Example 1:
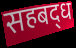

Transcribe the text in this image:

सहबद्ध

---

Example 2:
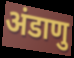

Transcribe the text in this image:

अंडाणु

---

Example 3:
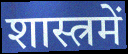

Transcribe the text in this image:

शास्त्रमें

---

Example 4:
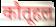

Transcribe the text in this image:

कौतूहल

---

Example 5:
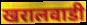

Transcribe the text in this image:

खरालवाडी